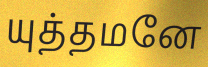
யுத்தமனே